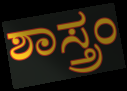
ಶಾಸ್ತ್ರಂ